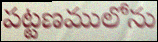
పట్టణములోను